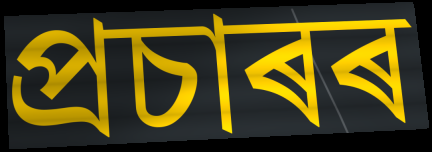
প্ৰচাৰৰ